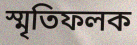
স্মৃতিফলক